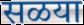
सळया